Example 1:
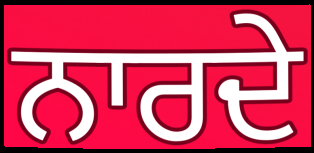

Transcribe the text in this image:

ਨਾਰਦੇ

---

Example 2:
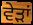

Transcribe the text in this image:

ਵੇੜਾਂ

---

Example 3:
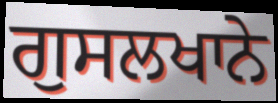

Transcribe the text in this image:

ਗੁਸਲਖਾਨੇ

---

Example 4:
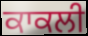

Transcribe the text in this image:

ਕਾਕਲੀ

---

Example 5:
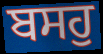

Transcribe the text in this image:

ਬਸਹੁ